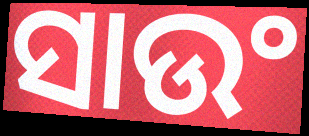
ସାଉଂ